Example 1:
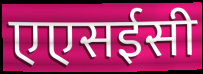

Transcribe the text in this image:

एएसईसी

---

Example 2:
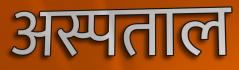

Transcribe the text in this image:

अस्पताल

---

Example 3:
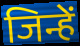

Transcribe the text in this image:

जिन्हें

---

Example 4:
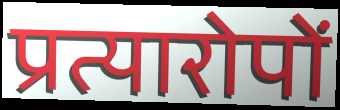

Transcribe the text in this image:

प्रत्यारोपों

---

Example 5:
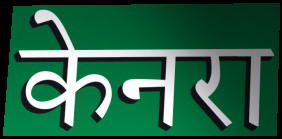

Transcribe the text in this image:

केनरा